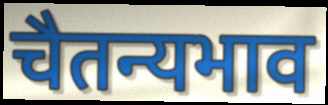
चैतन्यभाव